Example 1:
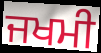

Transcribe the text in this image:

ਜਖਮੀ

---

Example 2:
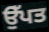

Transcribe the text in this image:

ਉੱਪਤ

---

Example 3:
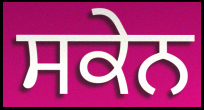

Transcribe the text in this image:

ਸਕੇਨ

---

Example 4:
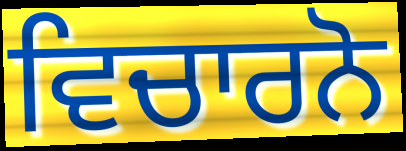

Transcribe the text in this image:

ਵਿਚਾਰਨੋ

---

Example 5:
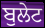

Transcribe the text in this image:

ਬੁਲੇਟ